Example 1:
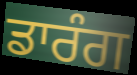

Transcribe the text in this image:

ਡਾਰੰਗ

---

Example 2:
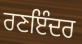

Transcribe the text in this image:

ਰਣਇੰਦਰ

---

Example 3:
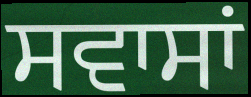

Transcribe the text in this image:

ਸਵਾਸਾਂ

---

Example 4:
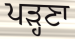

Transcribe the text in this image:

ਪੜ੍ਹਣਾ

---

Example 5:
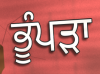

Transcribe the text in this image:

ਭੂੰਪੜਾ